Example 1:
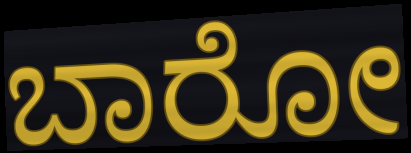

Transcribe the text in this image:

ಬಾರೋ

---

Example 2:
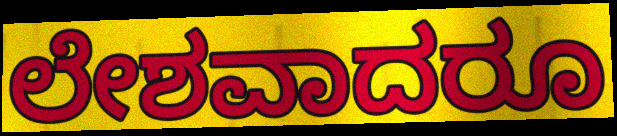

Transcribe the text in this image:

ಲೇಶವಾದರೂ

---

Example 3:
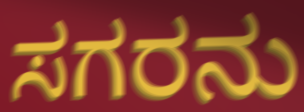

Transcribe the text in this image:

ಸಗರನು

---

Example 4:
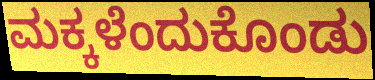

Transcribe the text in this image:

ಮಕ್ಕಳೆಂದುಕೊಂಡು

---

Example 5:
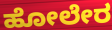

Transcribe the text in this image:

ಹೋಲೇರ